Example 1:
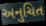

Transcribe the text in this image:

અનુચિત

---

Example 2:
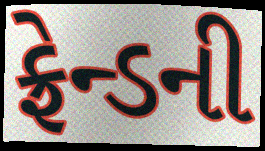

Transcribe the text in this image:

ફ્રેન્ડની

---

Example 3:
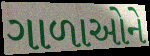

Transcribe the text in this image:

ગાળાઓને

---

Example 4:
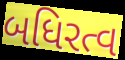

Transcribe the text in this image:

બધિરત્વ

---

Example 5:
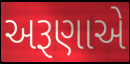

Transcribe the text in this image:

અરૂણાએ